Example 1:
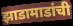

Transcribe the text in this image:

झाडामाडांची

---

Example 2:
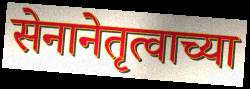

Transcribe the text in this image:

सेनानेतृत्वाच्या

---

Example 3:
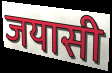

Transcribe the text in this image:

जयासी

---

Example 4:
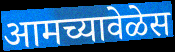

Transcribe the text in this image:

आमच्यावेळेस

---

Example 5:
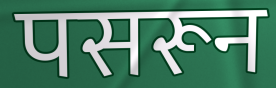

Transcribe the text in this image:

पसरून